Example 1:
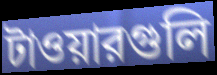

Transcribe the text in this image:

টাওয়ারগুলি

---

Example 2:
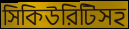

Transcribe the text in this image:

সিকিউরিটিসহ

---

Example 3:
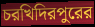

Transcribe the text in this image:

চরখিদিরপুরের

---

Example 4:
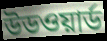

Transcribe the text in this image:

উডওয়ার্ড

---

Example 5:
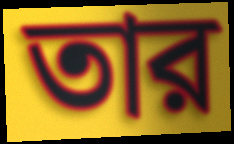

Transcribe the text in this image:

তার